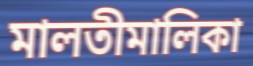
মালতীমালিকা